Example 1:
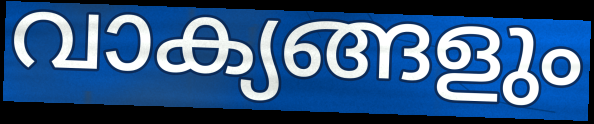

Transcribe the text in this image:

വാക്യങ്ങളും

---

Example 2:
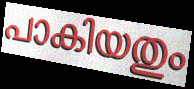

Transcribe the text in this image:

പാകിയതും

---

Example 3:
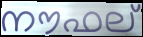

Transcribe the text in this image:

നൗഫല്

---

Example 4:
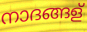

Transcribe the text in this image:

നാദങ്ങള്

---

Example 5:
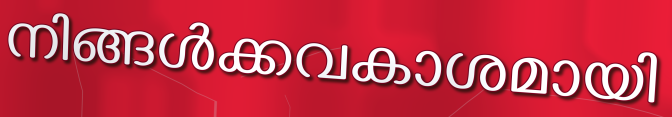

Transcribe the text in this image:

നിങ്ങൾക്കവകാശമായി